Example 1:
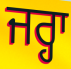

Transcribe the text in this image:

ਜਰ੍ਹਾ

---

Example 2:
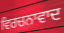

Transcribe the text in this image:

ਵਿਰਚਨਾਵਾਦ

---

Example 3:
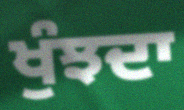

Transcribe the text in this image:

ਖੁੰਝਦਾ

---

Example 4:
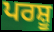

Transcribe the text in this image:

ਪਰਸ਼ੂ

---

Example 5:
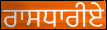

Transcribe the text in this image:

ਰਾਸਧਾਰੀਏ